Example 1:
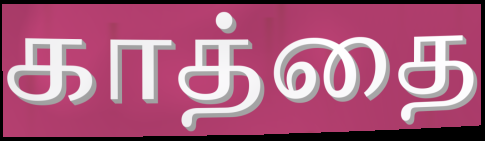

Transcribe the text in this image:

காத்தை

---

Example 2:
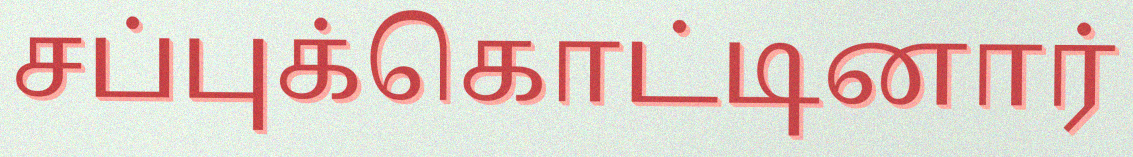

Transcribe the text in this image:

சப்புக்கொட்டினார்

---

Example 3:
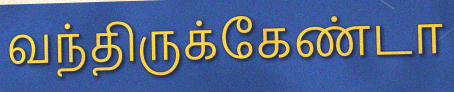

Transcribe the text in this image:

வந்திருக்கேண்டா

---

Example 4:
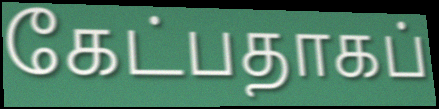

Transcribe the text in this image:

கேட்பதாகப்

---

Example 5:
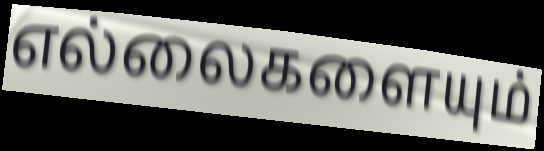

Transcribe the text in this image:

எல்லைகளையும்